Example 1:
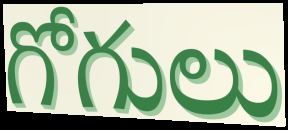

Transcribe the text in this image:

గోగులు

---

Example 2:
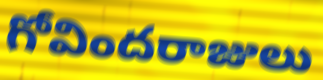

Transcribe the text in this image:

గోవిందరాజులు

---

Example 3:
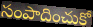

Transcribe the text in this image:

సంపాదించుకో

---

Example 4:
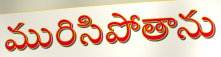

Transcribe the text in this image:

మురిసిపోతాను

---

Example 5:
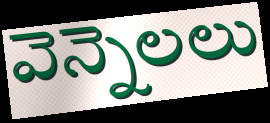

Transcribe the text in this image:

వెన్నెలలు